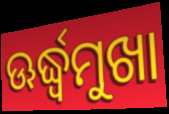
ଊର୍ଦ୍ଧ୍ବମୁଖା